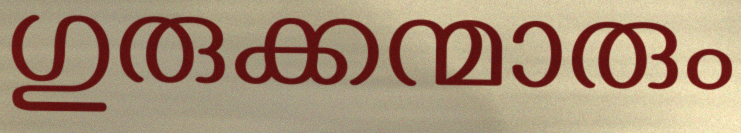
ഗുരുക്കന്മാരും